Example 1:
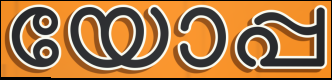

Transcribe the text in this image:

യോപ്പ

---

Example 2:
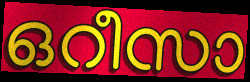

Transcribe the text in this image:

ഒറീസാ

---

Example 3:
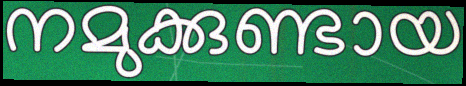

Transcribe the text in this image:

നമുക്കുണ്ടായ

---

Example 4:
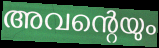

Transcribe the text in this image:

അവന്റെയും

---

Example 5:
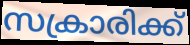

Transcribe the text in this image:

സക്രാരിക്ക്